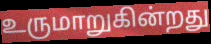
உருமாறுகின்றது